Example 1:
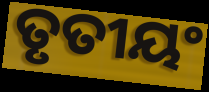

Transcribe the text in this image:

ତୃତୀୟଂ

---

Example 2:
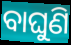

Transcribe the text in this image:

ବାଘୁଣି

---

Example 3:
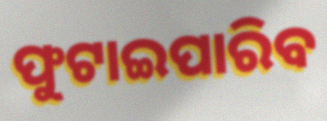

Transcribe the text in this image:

ଫୁଟାଇପାରିବ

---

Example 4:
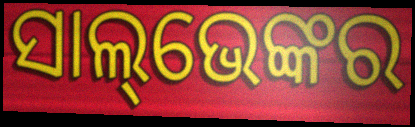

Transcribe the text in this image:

ସାଲ୍‌ଭେଙ୍କର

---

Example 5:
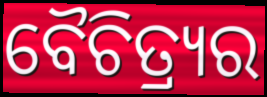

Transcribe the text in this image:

ବୈଚିତ୍ର୍ୟର